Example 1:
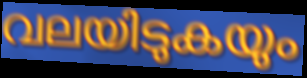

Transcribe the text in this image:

വലയിടുകയും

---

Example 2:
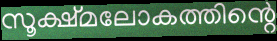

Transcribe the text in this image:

സൂക്ഷ്മലോകത്തിന്റെ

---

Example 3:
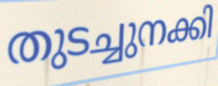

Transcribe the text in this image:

തുടച്ചുനക്കി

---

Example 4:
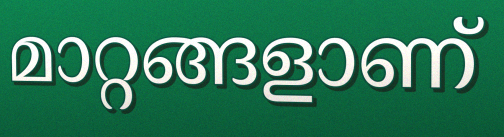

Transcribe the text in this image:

മാറ്റങ്ങളാണ്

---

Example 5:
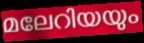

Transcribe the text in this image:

മലേറിയയും